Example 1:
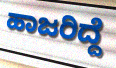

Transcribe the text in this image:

ಹಾಜರಿದ್ದೆ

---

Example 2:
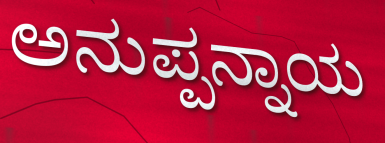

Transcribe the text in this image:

ಅನುಪ್ಪನ್ನಾಯ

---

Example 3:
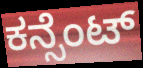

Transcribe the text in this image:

ಕನ್ಸೆಂಟ್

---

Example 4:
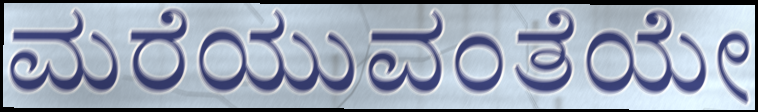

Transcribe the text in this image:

ಮರೆಯುವಂತೆಯೇ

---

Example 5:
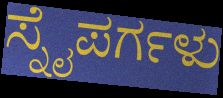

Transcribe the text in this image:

ಸ್ನೈಪರ್ಗಳು